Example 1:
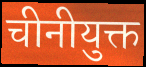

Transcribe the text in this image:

चीनीयुक्त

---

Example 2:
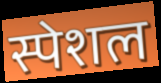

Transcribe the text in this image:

स्‍पेशल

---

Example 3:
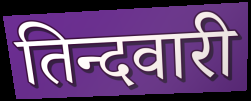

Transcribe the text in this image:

तिन्दवारी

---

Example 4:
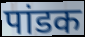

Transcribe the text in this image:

पांडक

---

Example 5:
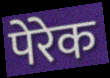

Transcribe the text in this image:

पेरेक